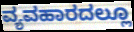
ವ್ಯವಹಾರದಲ್ಲೂ